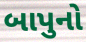
બાપુનો